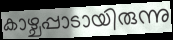
കാഴ്ചപ്പാടായിരുന്നു